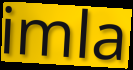
imla